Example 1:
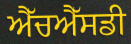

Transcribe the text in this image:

ਐੱਚਐੱਸਡੀ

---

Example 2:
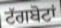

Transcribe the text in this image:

ਟੱਗਬੋਟਾਂ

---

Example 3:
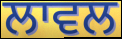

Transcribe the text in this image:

ਲਾਵਲ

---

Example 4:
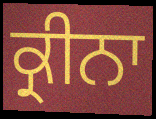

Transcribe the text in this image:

ਕ੍ਰੀਨਾ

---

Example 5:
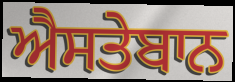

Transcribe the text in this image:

ਐਸਤੇਬਾਨ